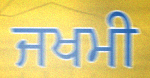
ਜਖਮੀ